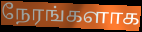
நேரங்களாக